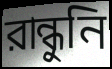
রান্ধুনি